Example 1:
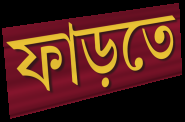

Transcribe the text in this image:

ফাড়তে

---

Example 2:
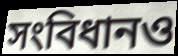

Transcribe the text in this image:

সংবিধানও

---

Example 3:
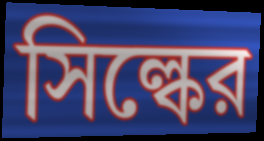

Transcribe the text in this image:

সিল্কের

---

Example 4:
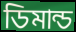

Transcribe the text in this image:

ডিমান্ড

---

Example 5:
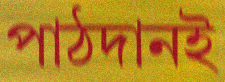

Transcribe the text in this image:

পাঠদানই